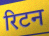
रिटन